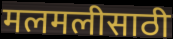
मलमलीसाठी